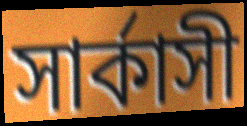
সার্কাসী